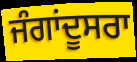
ਜੰਗਾਂਦੂਸਰਾ